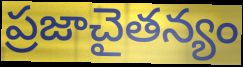
ప్రజాచైతన్యం